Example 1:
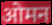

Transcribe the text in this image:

ओमन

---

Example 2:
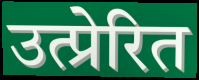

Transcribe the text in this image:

उत्प्रेरित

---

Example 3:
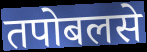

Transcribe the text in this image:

तपोबलसे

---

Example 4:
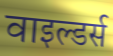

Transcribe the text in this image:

वाइल्डर्स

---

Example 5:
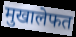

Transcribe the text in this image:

मुखालेफत